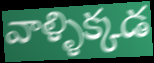
వాళ్ళిక్కడ